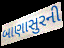
બાણાસુરની